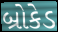
બ્રોકેડ